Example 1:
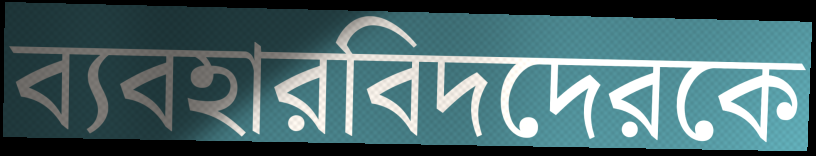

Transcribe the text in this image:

ব্যবহারবিদদেরকে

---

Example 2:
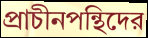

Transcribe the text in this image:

প্রাচীনপন্থিদের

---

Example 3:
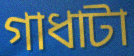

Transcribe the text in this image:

গাধাটা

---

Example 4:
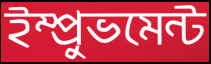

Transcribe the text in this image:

ইম্প্রুভমেন্ট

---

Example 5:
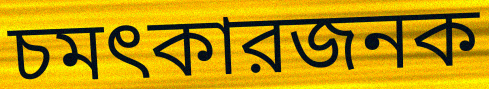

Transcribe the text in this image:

চমৎকারজনক